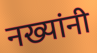
नख्यांनी